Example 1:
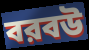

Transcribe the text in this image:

বরবউ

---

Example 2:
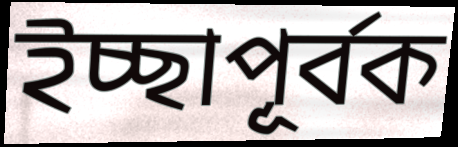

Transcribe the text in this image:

ইচ্ছাপূর্বক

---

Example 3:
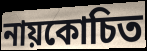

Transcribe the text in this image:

নায়কোচিত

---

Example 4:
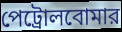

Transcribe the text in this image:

পেট্রোলবোমার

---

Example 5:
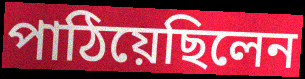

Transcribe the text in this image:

পাঠিয়েছিলেন